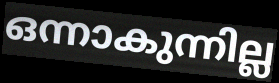
ഒന്നാകുന്നില്ല